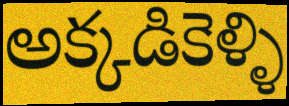
అక్కడికెళ్ళి